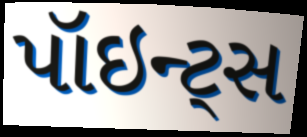
પૉઇન્ટ્સ